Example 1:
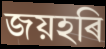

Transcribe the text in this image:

জয়হৰি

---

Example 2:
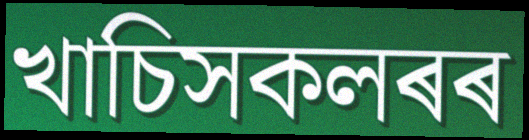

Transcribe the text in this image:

খাচিসকলৰৰ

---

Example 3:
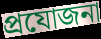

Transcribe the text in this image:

প্ৰযোজনা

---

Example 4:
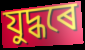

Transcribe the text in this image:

যুদ্ধৰে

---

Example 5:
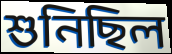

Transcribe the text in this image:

শুনিছিল